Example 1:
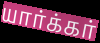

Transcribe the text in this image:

யார்க்கர்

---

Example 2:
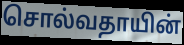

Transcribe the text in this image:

சொல்வதாயின்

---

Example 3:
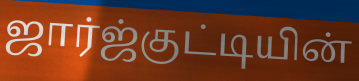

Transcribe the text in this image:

ஜார்ஜ்குட்டியின்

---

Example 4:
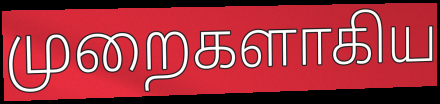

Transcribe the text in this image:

முறைகளாகிய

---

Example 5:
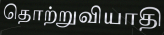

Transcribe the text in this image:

தொற்றுவியாதி